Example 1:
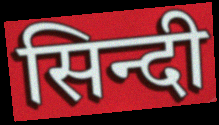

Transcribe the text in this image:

सिन्दी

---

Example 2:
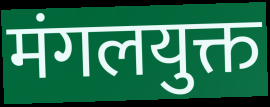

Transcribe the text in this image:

मंगलयुक्त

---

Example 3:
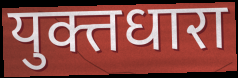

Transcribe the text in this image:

युक्तधारा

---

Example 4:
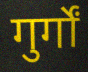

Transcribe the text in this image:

गुर्गों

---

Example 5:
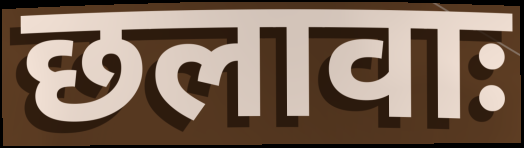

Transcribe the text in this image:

छलावाः